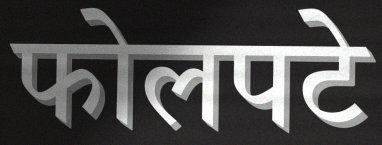
फोलपटे